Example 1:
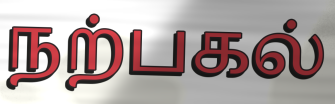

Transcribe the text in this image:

நற்பகல்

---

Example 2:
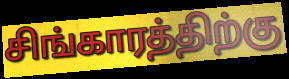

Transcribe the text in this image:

சிங்காரத்திற்கு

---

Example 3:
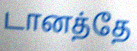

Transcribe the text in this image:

டானத்தே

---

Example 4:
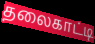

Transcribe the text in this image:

தலைகாட்டி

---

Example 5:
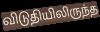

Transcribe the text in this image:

விடுதியிலிருந்த